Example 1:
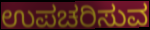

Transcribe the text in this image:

ಉಪಚರಿಸುವ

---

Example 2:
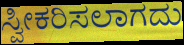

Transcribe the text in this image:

ಸ್ವೀಕರಿಸಲಾಗದು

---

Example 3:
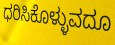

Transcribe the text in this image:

ಧರಿಸಿಕೊಳ್ಳುವದೂ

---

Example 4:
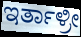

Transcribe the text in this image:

ಇರ್ತಾಳ್ರೀ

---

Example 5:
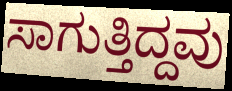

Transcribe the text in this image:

ಸಾಗುತ್ತಿದ್ದವು